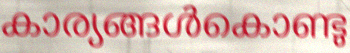
കാര്യങ്ങൾകൊണ്ടു